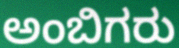
ಅಂಬಿಗರು